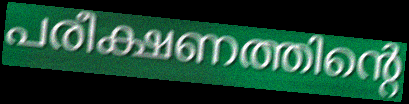
പരീക്ഷണത്തിന്റെ